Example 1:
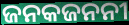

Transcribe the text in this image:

ଜନକଜନନୀ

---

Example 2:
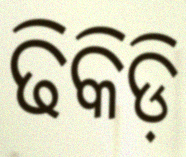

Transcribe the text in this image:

ଢିକିଡ଼ି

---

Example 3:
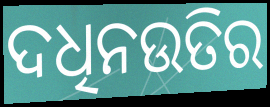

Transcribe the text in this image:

ଦଧିନଉତିର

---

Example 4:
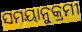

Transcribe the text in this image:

ସମୟାନୁକ୍ରମୀ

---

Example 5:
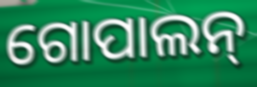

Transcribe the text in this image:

ଗୋପାଲନ୍